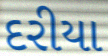
દરીયા